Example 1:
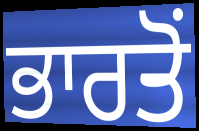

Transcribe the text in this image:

ਭਾਰਤੋਂ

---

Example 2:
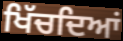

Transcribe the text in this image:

ਖਿੱਚਦਿਆਂ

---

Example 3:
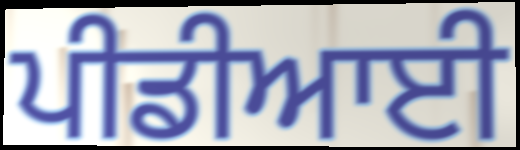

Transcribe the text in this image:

ਪੀਡੀਆਈ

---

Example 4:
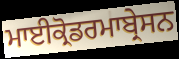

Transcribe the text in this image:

ਮਾਈਕ੍ਰੋਡਰਮਾਬ੍ਰੇਸਨ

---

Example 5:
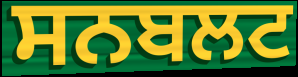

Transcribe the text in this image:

ਸਨਬਲਟ